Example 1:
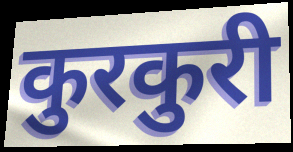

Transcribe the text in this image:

कुरकुरी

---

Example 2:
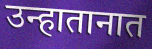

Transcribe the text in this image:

उन्हातानात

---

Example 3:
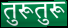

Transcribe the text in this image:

तुरूतुरू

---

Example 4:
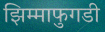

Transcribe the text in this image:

झिम्माफुगडी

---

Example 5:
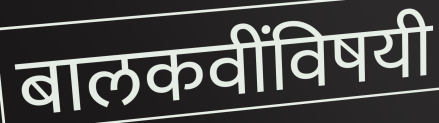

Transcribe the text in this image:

बालकवींविषयी